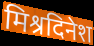
मिश्रदिनेश